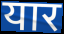
यार